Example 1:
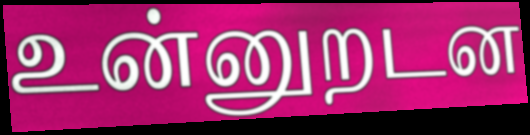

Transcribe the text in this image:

உன்னுறடன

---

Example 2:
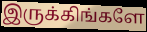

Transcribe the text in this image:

இருக்கிங்களே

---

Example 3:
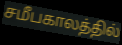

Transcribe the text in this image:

சமீபகாலத்தில்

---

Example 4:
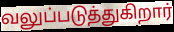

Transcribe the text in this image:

வலுப்படுத்துகிறார்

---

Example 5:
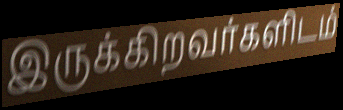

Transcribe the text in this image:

இருக்கிறவர்களிடம்